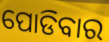
ପୋଡିବାର